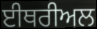
ਈਥਰੀਅਲ